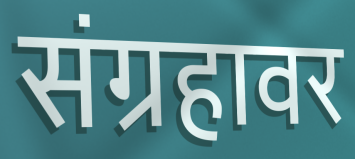
संग्रहावर